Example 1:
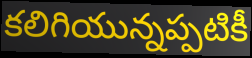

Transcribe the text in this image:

కలిగియున్నప్పటికీ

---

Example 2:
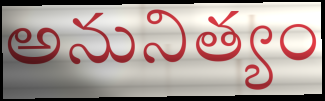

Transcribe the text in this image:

అనునిత్యం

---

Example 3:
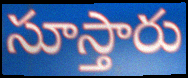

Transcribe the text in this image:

సూస్తారు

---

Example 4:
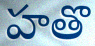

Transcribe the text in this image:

హతొ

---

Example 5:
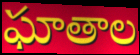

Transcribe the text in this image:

ఘాతాల